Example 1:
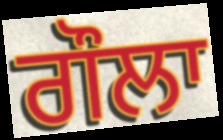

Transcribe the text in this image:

ਗੌਲਾ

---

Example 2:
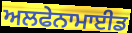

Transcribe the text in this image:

ਅਲਫੇਨਾਮਾਈਡ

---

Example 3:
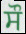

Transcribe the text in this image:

ਸੌ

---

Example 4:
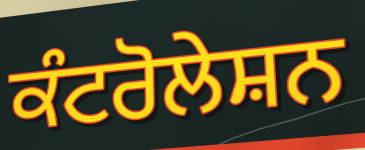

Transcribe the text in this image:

ਕੰਟਰੋਲੇਸ਼ਨ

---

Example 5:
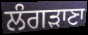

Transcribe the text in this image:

ਲੰਗੜਾਣਾ